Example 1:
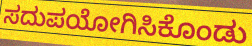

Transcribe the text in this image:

ಸದುಪಯೋಗಿಸಿಕೊಂಡು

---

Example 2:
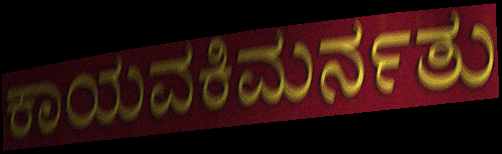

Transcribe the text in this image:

ಕಾಯವಕಿಮರ್ನತು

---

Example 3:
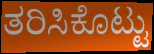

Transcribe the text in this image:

ತರಿಸಿಕೊಟ್ಟು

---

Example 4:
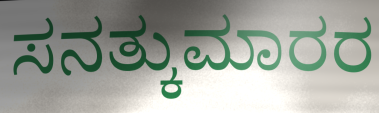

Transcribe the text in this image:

ಸನತ್ಕುಮಾರರ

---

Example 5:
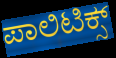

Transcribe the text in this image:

ಪಾಲಿಟಿಕ್ಸ್